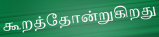
கூறத்தோன்றுகிறது